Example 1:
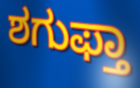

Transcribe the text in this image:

ಶಗುಫ್ತಾ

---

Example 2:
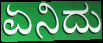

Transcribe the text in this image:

ಏನಿದು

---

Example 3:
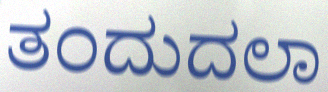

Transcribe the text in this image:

ತಂದುದಲಾ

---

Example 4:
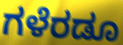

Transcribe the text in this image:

ಗಳೆರಡೂ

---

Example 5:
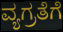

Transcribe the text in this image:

ವ್ಯಗ್ರತೆಗೆ